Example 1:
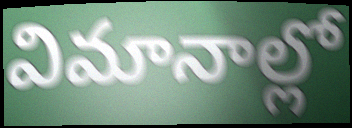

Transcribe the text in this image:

విమానాల్లో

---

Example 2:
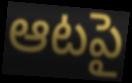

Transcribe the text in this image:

ఆటపై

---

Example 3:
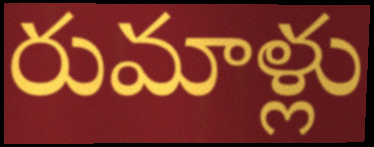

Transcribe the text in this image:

రుమాళ్లు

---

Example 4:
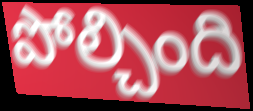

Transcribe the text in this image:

పోల్చింది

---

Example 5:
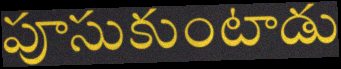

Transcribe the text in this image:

పూసుకుంటాడు